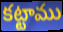
కట్టాము